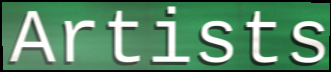
Artists